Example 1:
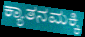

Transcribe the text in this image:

ಕ್ಯಾತನಮಕ್ಕಿ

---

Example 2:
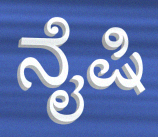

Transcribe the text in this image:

ನೈಷಿ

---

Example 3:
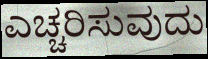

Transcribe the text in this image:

ಎಚ್ಚರಿಸುವುದು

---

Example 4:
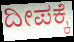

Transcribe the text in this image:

ದೀಪಕ್ಕೆ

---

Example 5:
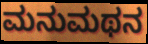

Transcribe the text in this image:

ಮನುಮಥನ